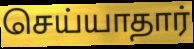
செய்யாதார்